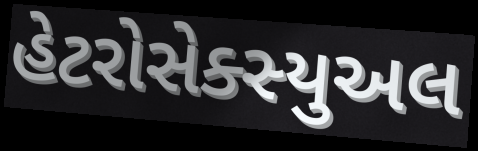
હેટરોસેક્સ્યુઅલ